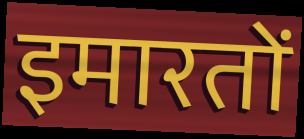
इमारतों